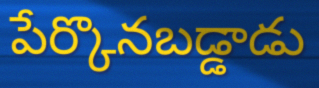
పేర్కొనబడ్డాడు